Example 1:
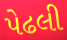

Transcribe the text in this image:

પેઢલી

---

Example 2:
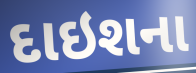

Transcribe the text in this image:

દાઇશના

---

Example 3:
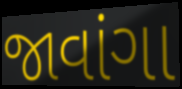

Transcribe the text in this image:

જાવાંગા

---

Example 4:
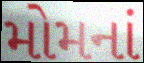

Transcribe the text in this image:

મોમનાં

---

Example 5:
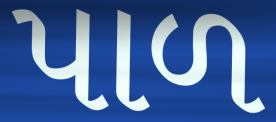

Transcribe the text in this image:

પાળ